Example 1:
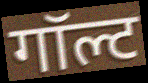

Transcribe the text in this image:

गॉल्ट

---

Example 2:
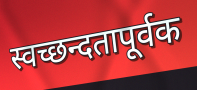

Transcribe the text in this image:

स्वच्छन्दतापूर्वक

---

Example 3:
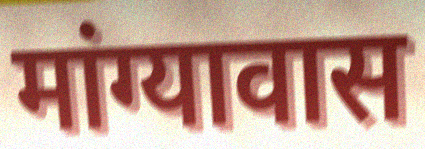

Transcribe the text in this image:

मांग्यावास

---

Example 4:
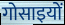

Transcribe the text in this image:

गोसाइयों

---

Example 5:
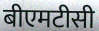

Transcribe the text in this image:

बीएमटीसी